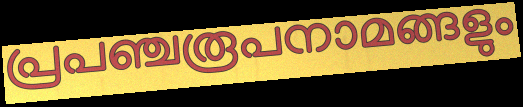
പ്രപഞ്ചരൂപനാമങ്ങളും